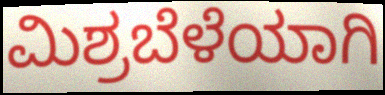
ಮಿಶ್ರಬೆಳೆಯಾಗಿ